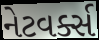
નેટવર્ક્સ